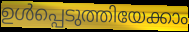
ഉൾപ്പെടുത്തിയേക്കാം